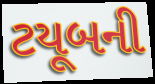
ટયૂબની